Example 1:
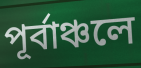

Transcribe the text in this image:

পূর্বাঞ্চলে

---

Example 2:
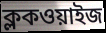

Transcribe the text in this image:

ক্লকওয়াইজ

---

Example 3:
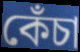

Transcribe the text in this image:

কেঁচা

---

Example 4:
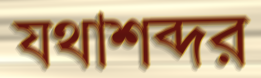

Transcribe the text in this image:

যথাশব্দর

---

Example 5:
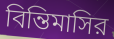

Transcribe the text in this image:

বিন্তিমাসির